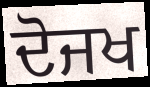
ਦੋਜਖ